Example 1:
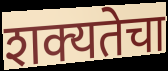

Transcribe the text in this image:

शक्‍यतेचा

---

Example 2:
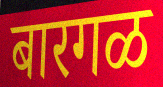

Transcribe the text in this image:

बारगळ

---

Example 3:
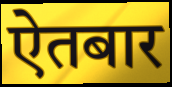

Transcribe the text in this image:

ऐतबार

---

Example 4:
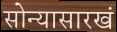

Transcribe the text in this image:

सोन्यासारखं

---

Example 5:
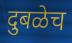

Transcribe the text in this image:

दुबळेच